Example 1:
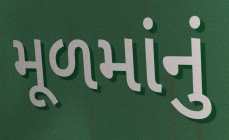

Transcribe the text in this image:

મૂળમાંનું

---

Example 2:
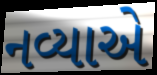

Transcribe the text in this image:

નવ્યાએ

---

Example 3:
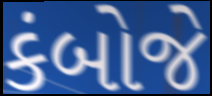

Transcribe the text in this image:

કંબોજે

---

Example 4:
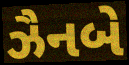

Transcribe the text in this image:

ઝૈનબે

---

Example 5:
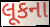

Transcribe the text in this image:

લૂકના